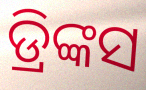
ଡ୍ରିଙ୍କସ